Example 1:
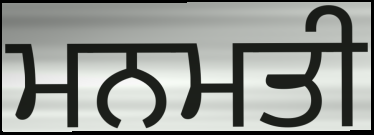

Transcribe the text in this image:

ਮਨਮਤੀ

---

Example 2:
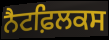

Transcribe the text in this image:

ਨੈਟਫ਼ਿਲਕਸ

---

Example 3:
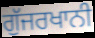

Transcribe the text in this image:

ਗੁੱਜਰਖਾਨੀ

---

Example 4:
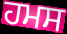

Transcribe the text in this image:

ਹਮਸ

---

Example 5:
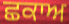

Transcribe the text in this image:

ਛਕਾਅ